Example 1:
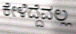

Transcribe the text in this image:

ಕೇಳಿದ್ದೆವಲ್ಲ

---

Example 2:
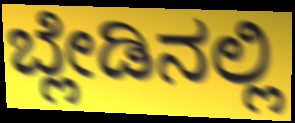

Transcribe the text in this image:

ಬ್ಲೇಡಿನಲ್ಲಿ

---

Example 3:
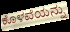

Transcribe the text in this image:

ಕೊಳವೆಯನ್ನು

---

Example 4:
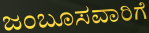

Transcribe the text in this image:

ಜಂಬೂಸವಾರಿಗೆ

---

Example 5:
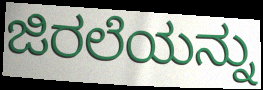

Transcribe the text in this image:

ಜಿರಲೆಯನ್ನು